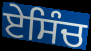
ਏਸਿੰਚ